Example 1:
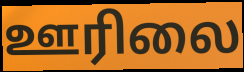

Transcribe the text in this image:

ஊரிலை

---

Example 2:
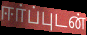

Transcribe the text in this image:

ஈர்ப்புடன்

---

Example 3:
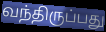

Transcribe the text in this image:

வந்திருப்பது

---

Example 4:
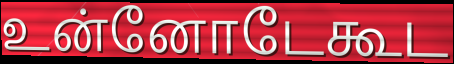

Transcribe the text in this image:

உன்னோடேகூட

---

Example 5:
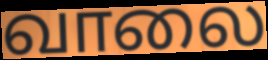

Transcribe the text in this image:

வாலை